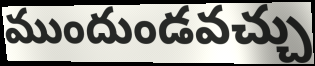
ముందుండవచ్చు